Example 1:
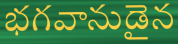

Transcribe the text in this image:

భగవానుడైన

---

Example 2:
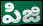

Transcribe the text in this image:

పిజి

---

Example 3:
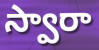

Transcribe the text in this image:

స్వారా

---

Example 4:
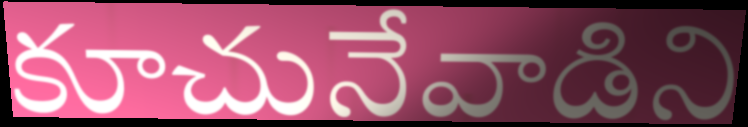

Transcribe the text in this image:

కూచునేవాడిని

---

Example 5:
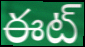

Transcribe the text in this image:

ఈట్